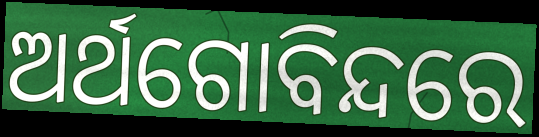
ଅର୍ଥଗୋବିନ୍ଦରେ